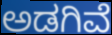
ಅಡಗಿವೆ